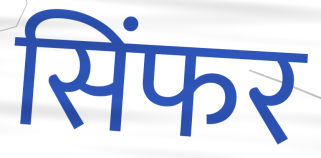
सिंफर